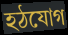
হঠযোগ